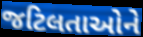
જટિલતાઓને